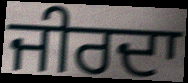
ਜੀਰਦਾ